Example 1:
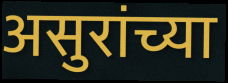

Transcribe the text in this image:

असुरांच्या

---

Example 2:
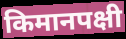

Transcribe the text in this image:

किमानपक्षी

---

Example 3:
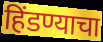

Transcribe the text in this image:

हिंडण्याचा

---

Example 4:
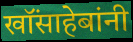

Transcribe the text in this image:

खॉंसाहेबांनी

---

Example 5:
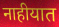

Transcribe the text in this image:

नाहीयात